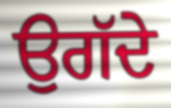
ਉਗੱਦੇ